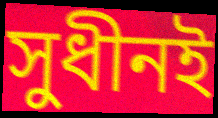
সুধীনই